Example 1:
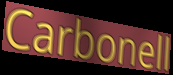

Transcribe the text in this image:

Carbonell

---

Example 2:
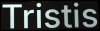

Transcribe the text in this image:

Tristis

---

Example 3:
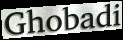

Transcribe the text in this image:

Ghobadi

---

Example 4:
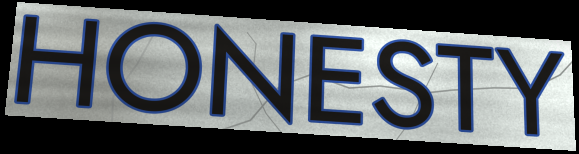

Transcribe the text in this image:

HONESTY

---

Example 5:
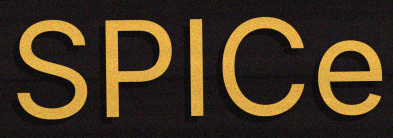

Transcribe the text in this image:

SPICe